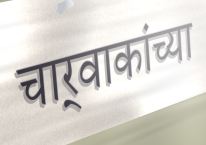
चार्वाकांच्या